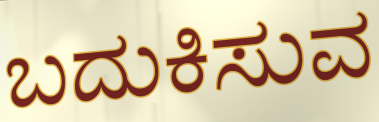
ಬದುಕಿಸುವ